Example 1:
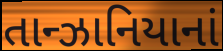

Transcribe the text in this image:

તાન્ઝાનિયાનાં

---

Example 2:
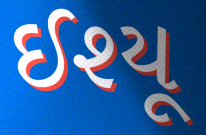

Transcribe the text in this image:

ઈશ્યૂ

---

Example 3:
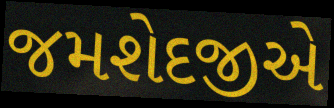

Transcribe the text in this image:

જમશેદજીએ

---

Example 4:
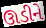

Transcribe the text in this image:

ઊડીને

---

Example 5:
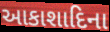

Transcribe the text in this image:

આકાશાદિના